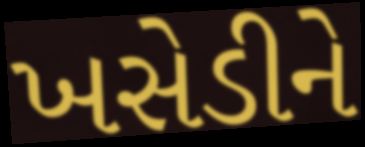
ખસેડીને